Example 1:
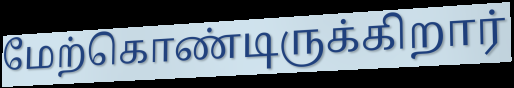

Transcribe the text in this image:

மேற்கொண்டிருக்கிறார்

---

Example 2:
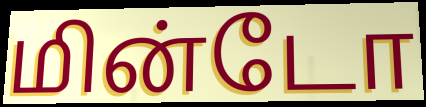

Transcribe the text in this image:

மின்டோ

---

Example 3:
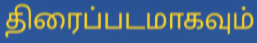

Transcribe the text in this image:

திரைப்படமாகவும்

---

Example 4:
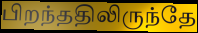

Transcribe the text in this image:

பிறந்ததிலிருந்தே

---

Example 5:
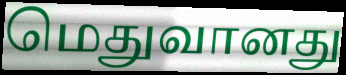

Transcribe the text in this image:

மெதுவானது